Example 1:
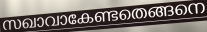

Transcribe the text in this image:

സഖാവാകേണ്ടതെങ്ങനെ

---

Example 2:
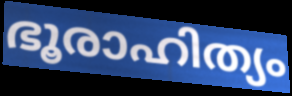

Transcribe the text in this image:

ഭൂരാഹിത്യം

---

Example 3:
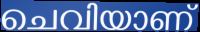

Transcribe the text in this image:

ചെവിയാണ്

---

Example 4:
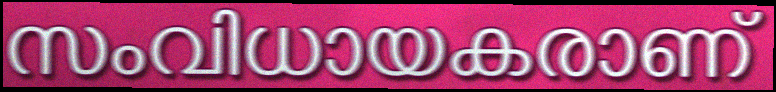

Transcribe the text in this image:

സംവിധായകരാണ്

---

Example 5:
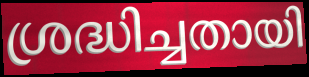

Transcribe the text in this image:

ശ്രദ്ധിച്ചതായി